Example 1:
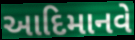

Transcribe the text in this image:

આદિમાનવે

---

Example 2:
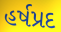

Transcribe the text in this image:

હર્ષપ્રદ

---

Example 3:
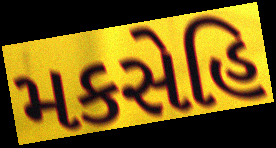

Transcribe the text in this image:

મકસેહિ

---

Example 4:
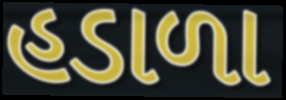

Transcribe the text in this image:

હડાળા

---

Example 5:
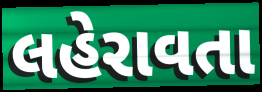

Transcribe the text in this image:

લહેરાવતા